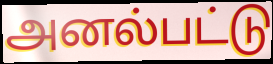
அனல்பட்டு